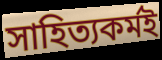
সাহিত্যকর্মই